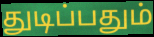
துடிப்பதும்